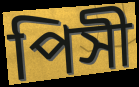
পিসী